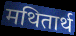
मथितार्थ